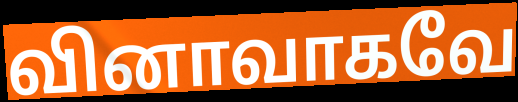
வினாவாகவே